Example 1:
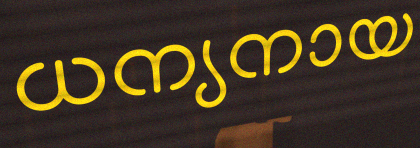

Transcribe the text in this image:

ധന്യനായ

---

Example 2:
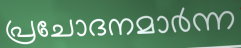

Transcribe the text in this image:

പ്രചോദനമാർന്ന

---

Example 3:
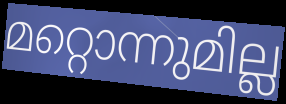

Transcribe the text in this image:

മറ്റൊന്നുമില്ല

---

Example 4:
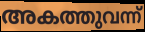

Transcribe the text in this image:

അകത്തുവന്ന്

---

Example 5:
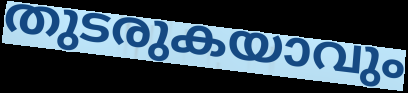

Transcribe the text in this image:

തുടരുകയാവും